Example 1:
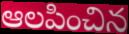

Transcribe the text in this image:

ఆలపించిన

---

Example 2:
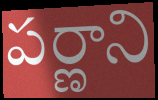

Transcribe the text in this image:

పర్ణాని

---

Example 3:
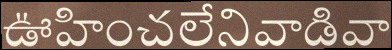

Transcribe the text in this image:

ఊహించలేనివాడివా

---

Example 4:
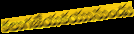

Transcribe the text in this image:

కలుగజేయకయునుండు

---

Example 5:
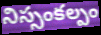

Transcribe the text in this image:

నిస్సంకల్పం